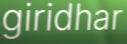
giridhar